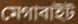
মেগাবাইট